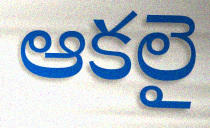
ఆకలై